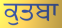
ਕੁਤਬਾ